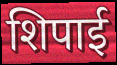
शिपाई